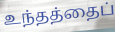
உந்தத்தைப்